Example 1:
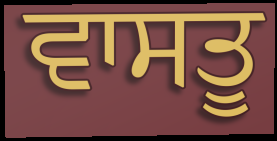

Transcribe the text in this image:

ਵਾਸਤੂ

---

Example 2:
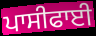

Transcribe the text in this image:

ਪਾਸੀਫਾਈ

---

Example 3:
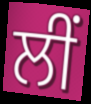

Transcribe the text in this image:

ਲੀਂ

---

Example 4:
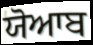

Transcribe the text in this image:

ਯੋਆਬ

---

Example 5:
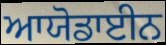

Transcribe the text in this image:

ਆਯੋਡਾਈਨ